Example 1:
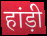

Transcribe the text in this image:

हांड़ी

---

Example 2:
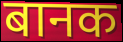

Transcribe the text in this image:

बानक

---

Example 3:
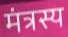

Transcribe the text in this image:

मंत्रस्य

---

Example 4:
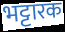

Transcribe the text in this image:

भट्टारक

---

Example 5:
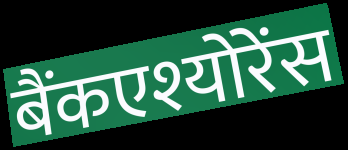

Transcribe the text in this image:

बैंकएश्योरेंस